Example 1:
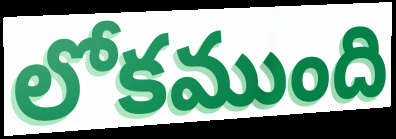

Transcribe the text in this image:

లోకముంది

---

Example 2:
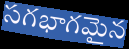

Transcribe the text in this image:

సగభాగమైన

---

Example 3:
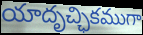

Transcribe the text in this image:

యాదృచ్ఛికముగా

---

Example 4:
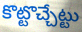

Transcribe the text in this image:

కొట్టొచ్చేట్టు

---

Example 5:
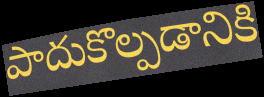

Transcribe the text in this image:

పాదుకొల్పడానికి